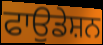
ਫਾਉਡੇਸ਼ਨ